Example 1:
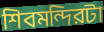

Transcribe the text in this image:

শিবমন্দিরটা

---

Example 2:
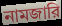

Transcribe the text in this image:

নামজারি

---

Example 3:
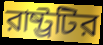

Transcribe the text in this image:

রাষ্ট্রটির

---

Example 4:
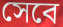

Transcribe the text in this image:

সেবে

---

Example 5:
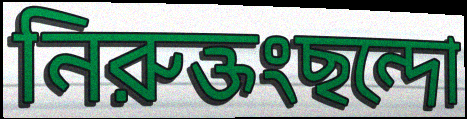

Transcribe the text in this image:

নিরুক্তংছন্দো